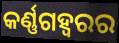
କର୍ଣ୍ଣଗହ୍ୱରର